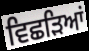
ਵਿਛੜਿਆਂ